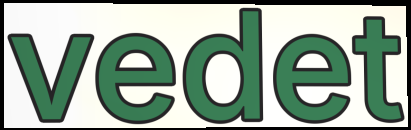
vedet